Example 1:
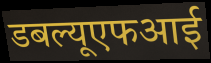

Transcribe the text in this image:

डबल्यूएफआई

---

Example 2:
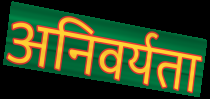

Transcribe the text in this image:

अनिवर्यता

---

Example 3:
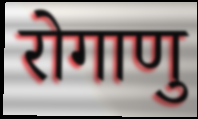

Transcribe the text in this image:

रोगाणु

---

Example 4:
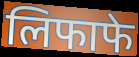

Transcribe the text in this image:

लिफाफे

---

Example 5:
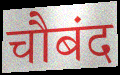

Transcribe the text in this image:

चौबंद